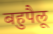
बहुपैलू